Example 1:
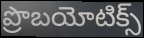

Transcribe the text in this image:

ప్రొబయోటిక్స్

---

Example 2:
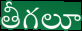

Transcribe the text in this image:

తీగలూ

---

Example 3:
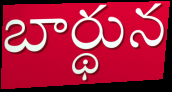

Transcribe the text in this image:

బార్థున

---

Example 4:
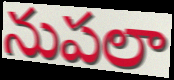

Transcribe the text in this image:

నుపలా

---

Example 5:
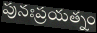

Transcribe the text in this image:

పునఃప్రయత్నం